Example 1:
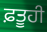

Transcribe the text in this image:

ਫ਼ਤੂਹੀ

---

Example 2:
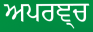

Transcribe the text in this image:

ਅਪਰਞ੍ਚ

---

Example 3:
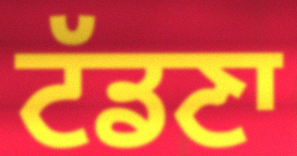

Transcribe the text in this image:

ਟੱਡਣਾ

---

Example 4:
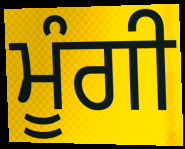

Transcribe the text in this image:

ਮੂੰਗੀ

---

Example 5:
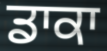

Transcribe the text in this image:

ਡਾਕਾ